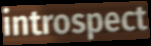
introspect